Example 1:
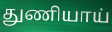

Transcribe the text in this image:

துணியாய்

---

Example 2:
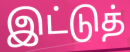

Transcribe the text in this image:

இட்டுத்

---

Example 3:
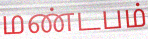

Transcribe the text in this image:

மண்டபம்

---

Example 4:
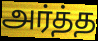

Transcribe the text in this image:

அர்த்த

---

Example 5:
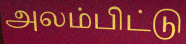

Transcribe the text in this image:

அலம்பிட்டு